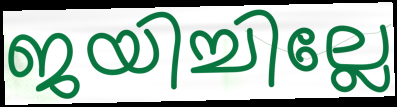
ജയിച്ചില്ലേ